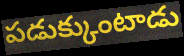
పడుక్కుంటాడు